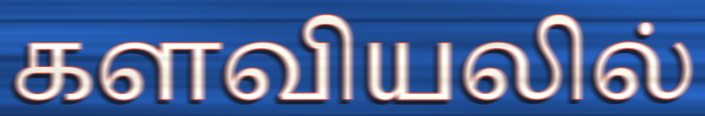
களவியலில்